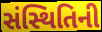
સંસ્થિતિની